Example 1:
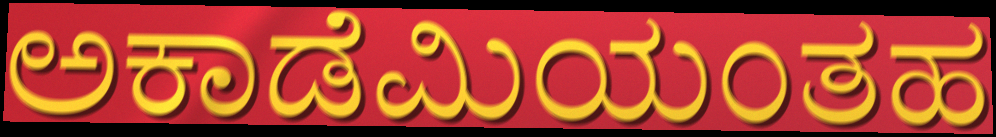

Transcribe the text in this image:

ಅಕಾಡೆಮಿಯಂತಹ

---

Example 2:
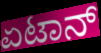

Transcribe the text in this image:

ಏಟಾನ್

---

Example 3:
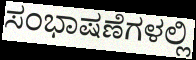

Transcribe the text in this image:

ಸಂಭಾಷಣೆಗಳಲ್ಲಿ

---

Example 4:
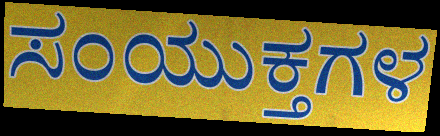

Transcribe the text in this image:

ಸಂಯುಕ್ತಗಳ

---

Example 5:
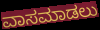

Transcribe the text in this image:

ವಾಸಮಾಡಲು